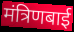
मंत्रिणबाई